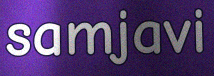
samjavi